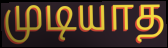
முடியாத